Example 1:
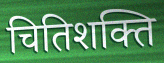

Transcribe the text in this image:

चितिशक्ति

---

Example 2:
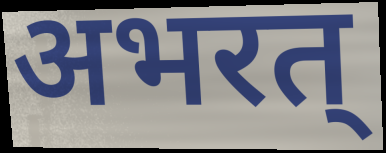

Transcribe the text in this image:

अभरत्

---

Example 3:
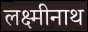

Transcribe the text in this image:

लक्ष्मीनाथ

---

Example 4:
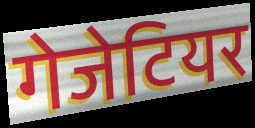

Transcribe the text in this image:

गेजेटियर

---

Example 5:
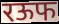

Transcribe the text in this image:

रऊफ